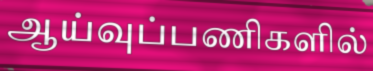
ஆய்வுப்பணிகளில்